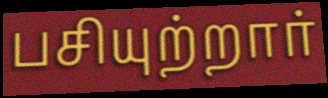
பசியுற்றார்